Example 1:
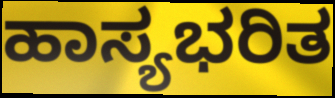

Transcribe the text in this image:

ಹಾಸ್ಯಭರಿತ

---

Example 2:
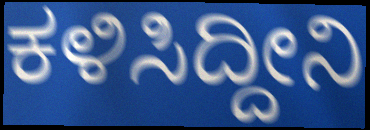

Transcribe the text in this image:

ಕಳಿಸಿದ್ದೀನಿ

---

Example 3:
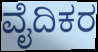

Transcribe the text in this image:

ವೈದಿಕರ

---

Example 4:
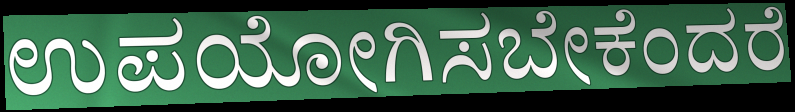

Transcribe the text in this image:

ಉಪಯೋಗಿಸಬೇಕೆಂದರೆ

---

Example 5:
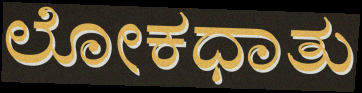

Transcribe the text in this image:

ಲೋಕಧಾತು